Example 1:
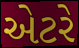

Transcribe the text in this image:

એટરે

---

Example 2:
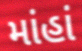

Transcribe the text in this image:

માંહાં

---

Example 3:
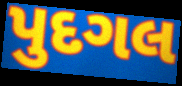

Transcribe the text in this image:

પુદગલ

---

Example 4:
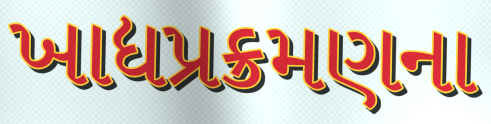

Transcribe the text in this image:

ખાદ્યપ્રક્રમણના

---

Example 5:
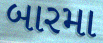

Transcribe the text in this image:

બારમા